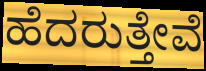
ಹೆದರುತ್ತೇವೆ